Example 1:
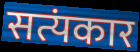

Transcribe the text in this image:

सत्यंकार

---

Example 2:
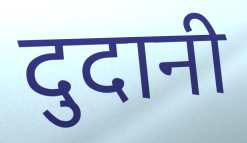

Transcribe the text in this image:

दुदानी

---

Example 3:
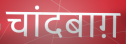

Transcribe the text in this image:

चांदबाग़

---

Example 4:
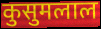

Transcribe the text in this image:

कुसुमलाल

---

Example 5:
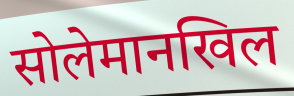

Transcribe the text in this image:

सोलेमानखिल